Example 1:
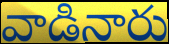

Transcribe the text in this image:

వాడినారు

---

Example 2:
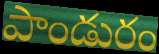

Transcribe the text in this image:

పాండురం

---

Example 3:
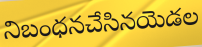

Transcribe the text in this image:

నిబంధనచేసినయెడల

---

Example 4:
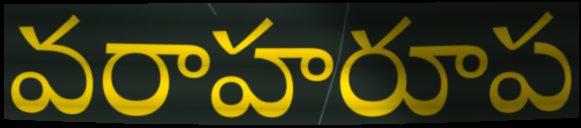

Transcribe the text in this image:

వరాహరూప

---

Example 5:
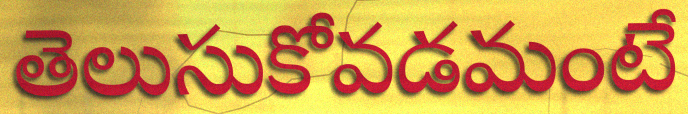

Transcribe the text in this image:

తెలుసుకోవడమంటే